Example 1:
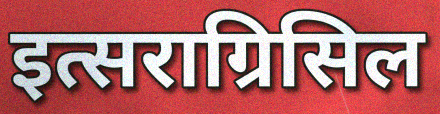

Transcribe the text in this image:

इत्सराग्रिसिल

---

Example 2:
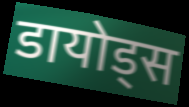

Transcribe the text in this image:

डायोड्स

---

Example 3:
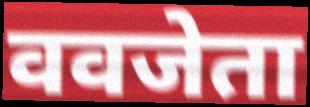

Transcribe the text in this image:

ववजेता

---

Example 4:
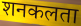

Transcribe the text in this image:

शनकलता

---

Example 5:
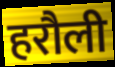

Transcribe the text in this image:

हरौली